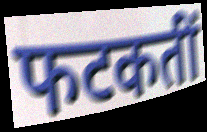
फटकतीं